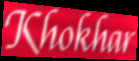
Khokhar